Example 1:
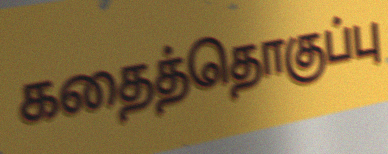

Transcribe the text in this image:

கதைத்தொகுப்பு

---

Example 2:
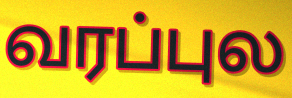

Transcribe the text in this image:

வரப்புல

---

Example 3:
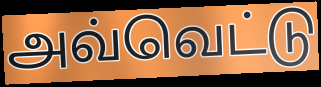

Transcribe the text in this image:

அவ்வெட்டு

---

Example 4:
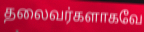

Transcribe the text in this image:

தலைவர்களாகவே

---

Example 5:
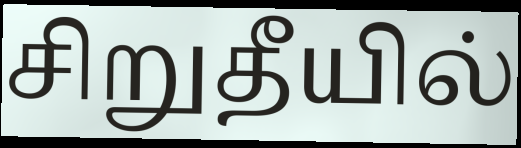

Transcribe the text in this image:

சிறுதீயில்